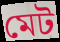
মেট